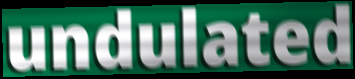
undulated